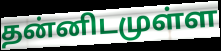
தன்னிடமுள்ள